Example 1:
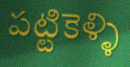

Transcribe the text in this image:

పట్టికెళ్ళి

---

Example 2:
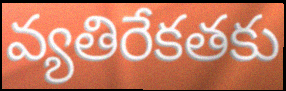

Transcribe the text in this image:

వ్యతిరేకతకు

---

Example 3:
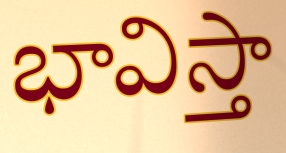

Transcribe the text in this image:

భావిస్తా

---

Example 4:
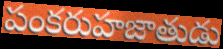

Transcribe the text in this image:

పంకరుహజాతుడు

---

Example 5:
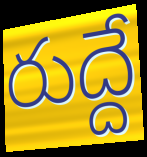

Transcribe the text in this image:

రుద్దే